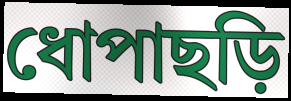
ধোপাছড়ি